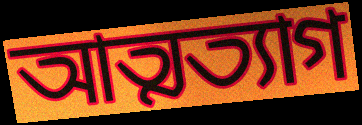
আত্মত্যাগ